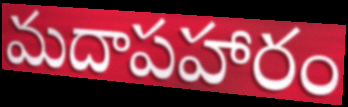
మదాపహారం